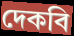
দেকবি